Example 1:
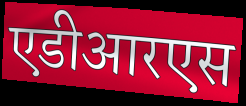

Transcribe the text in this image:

एडीआरएस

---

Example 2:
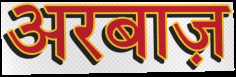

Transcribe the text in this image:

अरबाज़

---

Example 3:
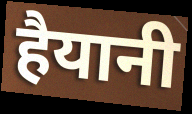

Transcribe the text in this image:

हैयानी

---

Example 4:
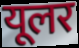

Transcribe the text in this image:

यूलर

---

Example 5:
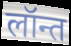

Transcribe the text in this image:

लॉन्त